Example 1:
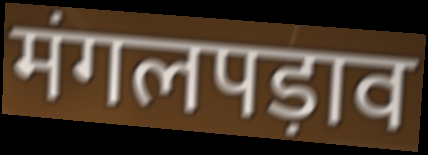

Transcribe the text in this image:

मंगलपड़ाव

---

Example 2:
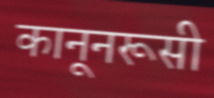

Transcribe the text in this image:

कानूनरूसी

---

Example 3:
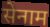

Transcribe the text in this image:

सेनाम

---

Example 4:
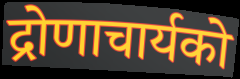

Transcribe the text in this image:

द्रोणाचार्यको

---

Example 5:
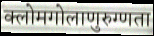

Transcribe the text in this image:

क्लोमगोलाणुरुग्णता